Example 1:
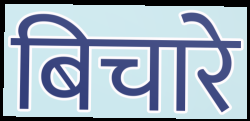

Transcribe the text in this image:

बिचारे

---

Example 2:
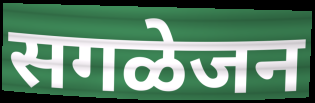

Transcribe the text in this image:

सगळेजन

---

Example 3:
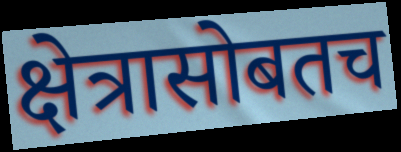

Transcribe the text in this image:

क्षेत्रासोबतच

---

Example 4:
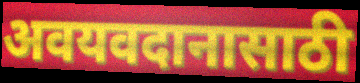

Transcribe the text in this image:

अवयवदानासाठी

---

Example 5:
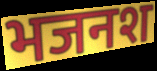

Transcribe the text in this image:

भजनश